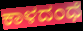
ಕಾಳದಂಧೆ